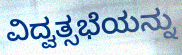
ವಿದ್ವತ್ಸಭೆಯನ್ನು